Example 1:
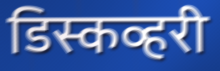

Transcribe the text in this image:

डिस्कव्हरी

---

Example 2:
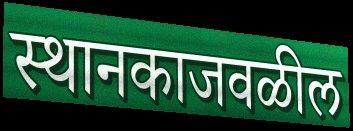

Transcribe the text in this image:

स्थानकाजवळील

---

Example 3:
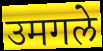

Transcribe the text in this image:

उमगले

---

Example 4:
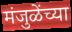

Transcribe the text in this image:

मंजुळेंच्या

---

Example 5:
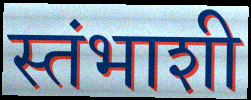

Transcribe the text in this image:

स्तंभाशी